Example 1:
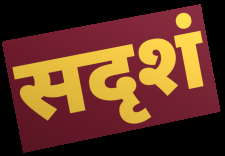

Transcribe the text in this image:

सदृशं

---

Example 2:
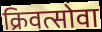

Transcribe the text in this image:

क्रिवत्सोवा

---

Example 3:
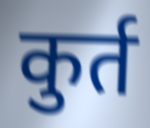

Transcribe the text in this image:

कुर्त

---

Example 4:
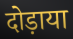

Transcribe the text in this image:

दोड़ाया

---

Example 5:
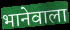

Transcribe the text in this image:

भानेवाला